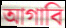
আগাবি